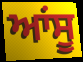
ਆਂਸੂ